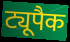
ट्यूपैक